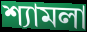
শ্যামলা